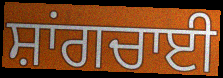
ਸ਼ਾਂਗਚਾਈ